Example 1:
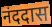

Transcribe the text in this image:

नंददास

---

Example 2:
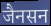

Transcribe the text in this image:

जैनसन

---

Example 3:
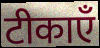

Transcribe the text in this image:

टीकाएँ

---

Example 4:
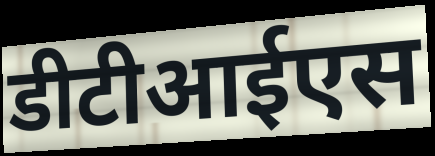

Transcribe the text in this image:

डीटीआईएस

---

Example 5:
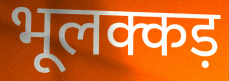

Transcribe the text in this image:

भूलक्कड़